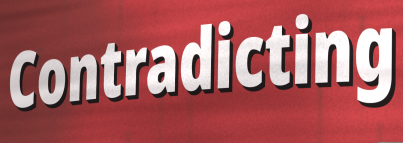
Contradicting